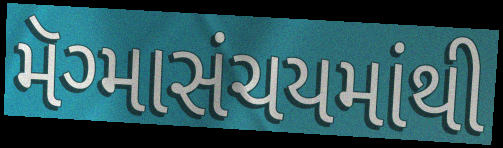
મૅગ્માસંચયમાંથી